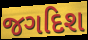
જગદિશ